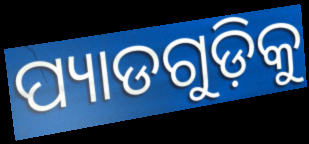
ପ୍ୟାଡଗୁଡ଼ିକୁ